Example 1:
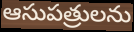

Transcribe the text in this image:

ఆసుపత్రులను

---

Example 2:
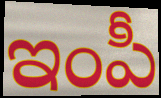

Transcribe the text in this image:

ఇంపీ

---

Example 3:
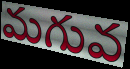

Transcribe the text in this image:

మగువ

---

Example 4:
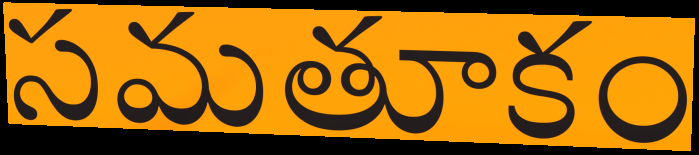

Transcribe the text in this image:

సమతూకం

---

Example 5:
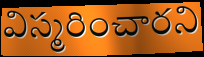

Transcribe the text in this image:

విస్మరించారని